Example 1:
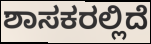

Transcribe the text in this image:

ಶಾಸಕರಲ್ಲಿದೆ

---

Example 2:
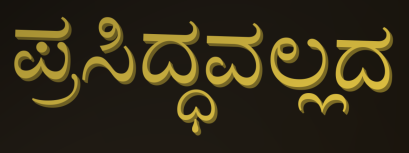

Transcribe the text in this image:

ಪ್ರಸಿದ್ಧವಲ್ಲದ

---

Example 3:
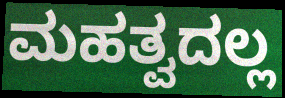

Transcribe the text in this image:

ಮಹತ್ವದಲ್ಲ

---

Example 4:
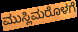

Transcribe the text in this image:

ಮುಸ್ಲಿಮರೊಳಗೆ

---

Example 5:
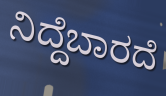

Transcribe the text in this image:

ನಿದ್ದೆಬಾರದೆ